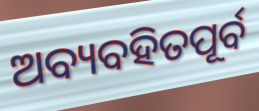
ଅବ୍ୟବହିତପୂର୍ବ